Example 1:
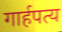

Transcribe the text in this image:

गार्हपत्य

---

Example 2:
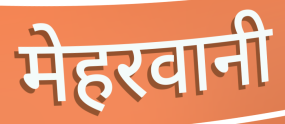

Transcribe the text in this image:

मेहरवानी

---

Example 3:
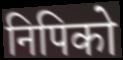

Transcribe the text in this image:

निपिको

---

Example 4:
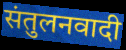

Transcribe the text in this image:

संतुलनवादी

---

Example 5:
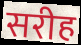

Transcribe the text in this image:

सरीह